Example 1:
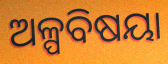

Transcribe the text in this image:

ଅଳ୍ପବିଷୟା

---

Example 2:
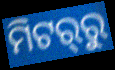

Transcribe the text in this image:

ମିଟର୍‍ରୁ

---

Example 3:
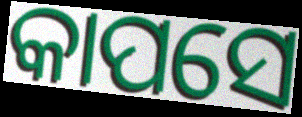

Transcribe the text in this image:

କାପସେ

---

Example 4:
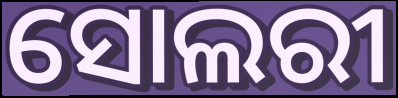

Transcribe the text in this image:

ସୋଲରୀ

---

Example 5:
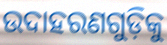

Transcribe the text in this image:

ଉଦାହରଣଗୁଡ଼ିକୁ